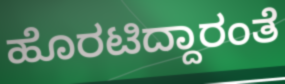
ಹೊರಟಿದ್ದಾರಂತೆ